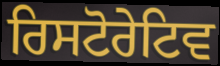
ਰਿਸਟੋਰੇਟਿਵ